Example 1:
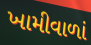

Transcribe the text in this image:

ખામીવાળાં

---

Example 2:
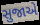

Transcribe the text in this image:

સુજાએ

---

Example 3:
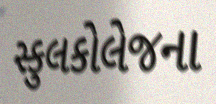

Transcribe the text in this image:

સ્કુલકોલેજના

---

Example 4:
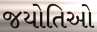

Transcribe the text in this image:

જયોતિઓ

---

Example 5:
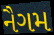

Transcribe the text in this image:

નૈગમ